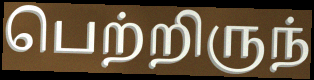
பெற்றிருந்